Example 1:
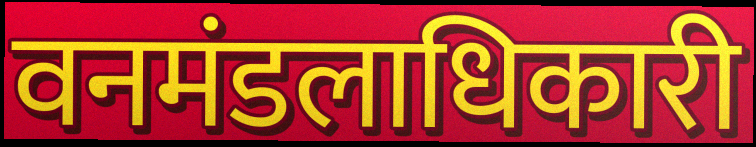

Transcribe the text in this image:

वनमंडलाधिकारी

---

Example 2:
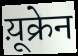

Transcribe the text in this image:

य़ूक्रेन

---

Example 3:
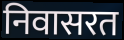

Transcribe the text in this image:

निवासरत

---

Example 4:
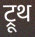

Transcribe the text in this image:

ट्रूथ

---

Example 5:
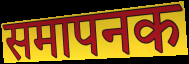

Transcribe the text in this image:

समापनक